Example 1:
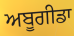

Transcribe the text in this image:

ਅਬੂਗੀਡਾ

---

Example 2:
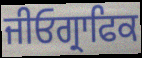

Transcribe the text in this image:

ਜੀਓਗ੍ਰਾਫਿਕ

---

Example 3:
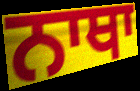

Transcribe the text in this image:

ਨਾਥਾ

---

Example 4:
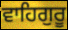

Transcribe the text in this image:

ਵਾਹਿਗੁਰੂ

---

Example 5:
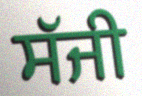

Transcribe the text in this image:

ਸੱਜੀ